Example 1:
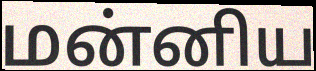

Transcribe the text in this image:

மன்னிய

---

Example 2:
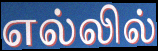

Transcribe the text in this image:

எல்லில்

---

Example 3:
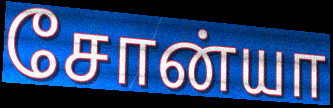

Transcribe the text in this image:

சோன்யா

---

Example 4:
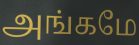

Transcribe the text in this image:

அங்கமே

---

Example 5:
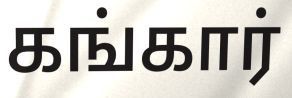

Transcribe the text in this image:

கங்கார்